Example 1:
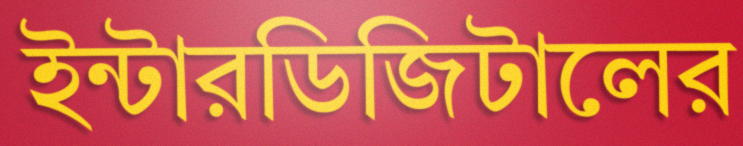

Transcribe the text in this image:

ইন্টারডিজিটালের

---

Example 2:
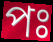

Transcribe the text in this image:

পঃ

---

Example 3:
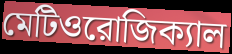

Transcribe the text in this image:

মেটিওরোজিক্যাল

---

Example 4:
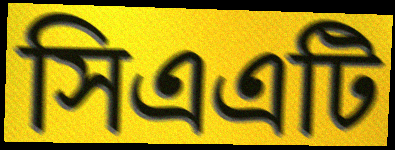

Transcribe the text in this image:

সিএএটি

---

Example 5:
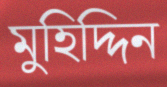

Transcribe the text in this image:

মুহিদ্দিন